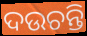
ଦଉଚନ୍ତି